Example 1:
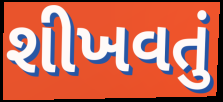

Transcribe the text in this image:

શીખવતું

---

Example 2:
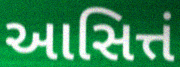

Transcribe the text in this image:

આસિત્તં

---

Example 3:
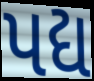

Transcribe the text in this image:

પદ્ય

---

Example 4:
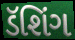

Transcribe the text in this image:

ડૅશિંગ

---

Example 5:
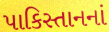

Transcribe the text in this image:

પાકિસ્તાનનાં